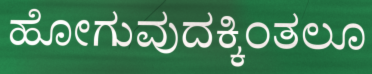
ಹೋಗುವುದಕ್ಕಿಂತಲೂ